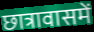
छात्रावासमें